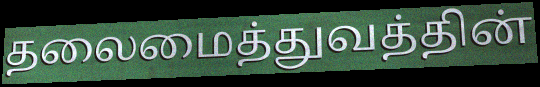
தலைமைத்துவத்தின்